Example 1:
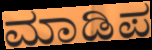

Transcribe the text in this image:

ಮಾಡಿಪ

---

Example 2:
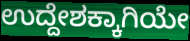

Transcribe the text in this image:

ಉದ್ದೇಶಕ್ಕಾಗಿಯೇ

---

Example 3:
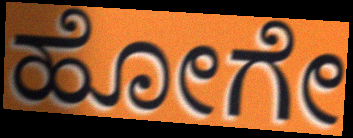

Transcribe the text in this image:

ಹೋಗೇ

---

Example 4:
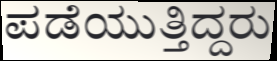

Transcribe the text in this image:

ಪಡೆಯುತ್ತಿದ್ದರು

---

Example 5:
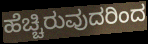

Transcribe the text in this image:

ಹೆಚ್ಚಿರುವುದರಿಂದ